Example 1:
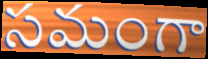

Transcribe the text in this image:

సమంగా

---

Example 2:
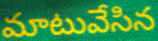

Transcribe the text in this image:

మాటువేసిన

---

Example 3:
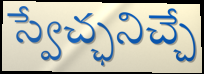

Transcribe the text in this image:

స్వేచ్ఛనిచ్చే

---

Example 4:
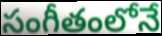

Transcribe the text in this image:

సంగీతంలోనే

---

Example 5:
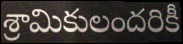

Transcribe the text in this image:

శ్రామికులందరికీ